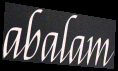
abalam